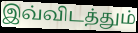
இவ்விடத்தும்